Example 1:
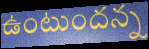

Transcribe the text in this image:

ఉంటుందన్న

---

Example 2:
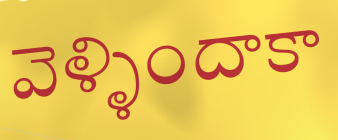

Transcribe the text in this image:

వెళ్ళిందాకా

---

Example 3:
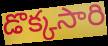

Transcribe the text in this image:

డొక్కసారి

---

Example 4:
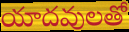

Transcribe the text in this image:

యాదవులతో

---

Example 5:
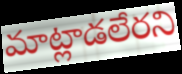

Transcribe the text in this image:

మాట్లాడలేరని